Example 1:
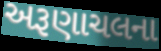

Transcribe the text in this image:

અરૂણાચલના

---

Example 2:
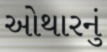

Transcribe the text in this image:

ઓથારનું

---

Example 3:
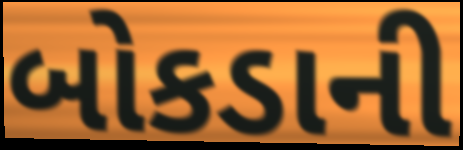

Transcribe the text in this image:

બોકડાની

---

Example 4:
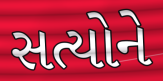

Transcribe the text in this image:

સત્યોને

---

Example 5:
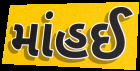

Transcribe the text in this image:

માંહઈ